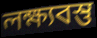
লক্ষ্যবস্তু